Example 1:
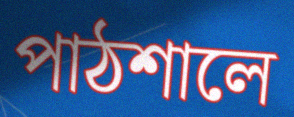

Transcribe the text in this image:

পাঠশালে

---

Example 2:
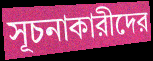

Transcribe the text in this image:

সূচনাকারীদের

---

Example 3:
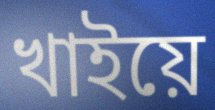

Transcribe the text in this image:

খাইয়ে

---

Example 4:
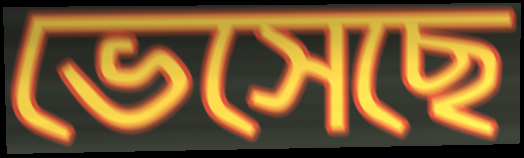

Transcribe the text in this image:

ভেসেছে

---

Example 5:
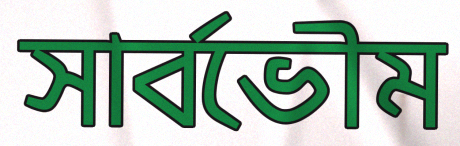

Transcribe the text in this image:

সার্বভৌম